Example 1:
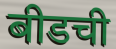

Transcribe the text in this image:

बीडची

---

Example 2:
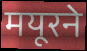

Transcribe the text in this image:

मयूरने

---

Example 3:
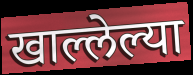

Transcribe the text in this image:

खाल्लेल्या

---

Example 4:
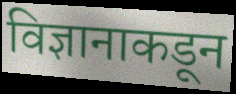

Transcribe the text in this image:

विज्ञानाकडून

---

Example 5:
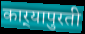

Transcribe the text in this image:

कार्यापुरती